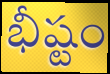
భీష్టం